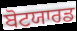
ਬੋਟਯਾਰਡ